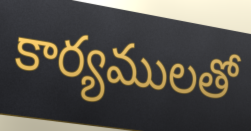
కార్యములతో